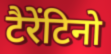
टैरेंटिनो